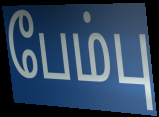
பேம்பு